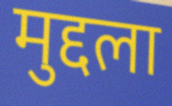
मुद्दला